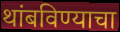
थांबविण्याचा